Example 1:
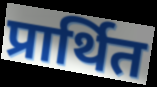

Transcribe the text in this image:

प्रार्थित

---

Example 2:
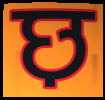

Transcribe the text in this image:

छ़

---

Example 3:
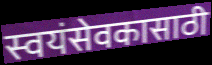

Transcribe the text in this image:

स्वयंसेवकासाठी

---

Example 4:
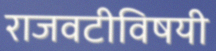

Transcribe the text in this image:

राजवटीविषयी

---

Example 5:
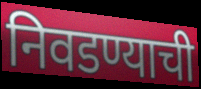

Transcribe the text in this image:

निवडण्याची